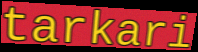
tarkari